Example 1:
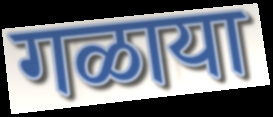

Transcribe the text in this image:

गळाया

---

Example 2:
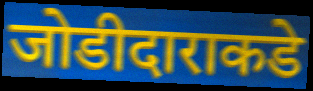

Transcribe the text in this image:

जोडीदाराकडे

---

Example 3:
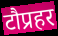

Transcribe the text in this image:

टौप्रहर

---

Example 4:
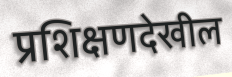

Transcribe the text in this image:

प्रशिक्षणदेखील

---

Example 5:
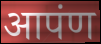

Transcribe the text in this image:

आपंण